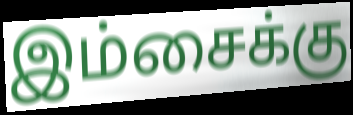
இம்சைக்கு